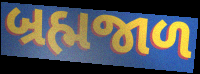
બ્રહ્મજાળ